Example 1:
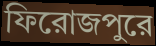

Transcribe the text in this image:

ফিরোজপুরে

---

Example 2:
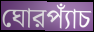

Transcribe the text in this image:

ঘোরপ্যাঁচ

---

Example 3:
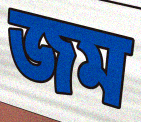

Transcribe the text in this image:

জম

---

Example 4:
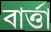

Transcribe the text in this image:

বার্ত্তা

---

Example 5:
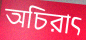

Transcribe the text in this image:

অচিরাৎ